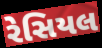
રેસિયલ